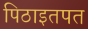
पिठाइतपत